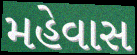
મહેવાસ